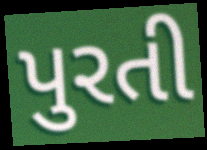
પુરતી